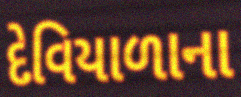
દેવિયાળાના